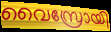
വൈസ്രോയി